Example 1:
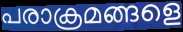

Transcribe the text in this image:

പരാക്രമങ്ങളെ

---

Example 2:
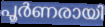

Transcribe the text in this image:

പൂർണരായി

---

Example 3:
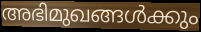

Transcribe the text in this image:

അഭിമുഖങ്ങൾക്കും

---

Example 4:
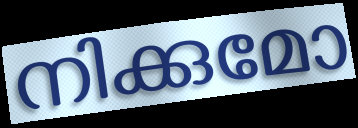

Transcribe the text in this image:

നിക്കുമോ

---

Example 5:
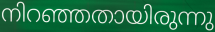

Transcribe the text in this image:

നിറഞ്ഞതായിരുന്നു